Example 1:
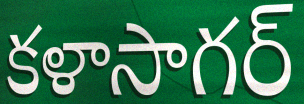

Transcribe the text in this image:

కళాసాగర్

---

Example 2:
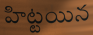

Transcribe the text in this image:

హిట్టయిన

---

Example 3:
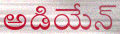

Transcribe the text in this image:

అడియేన్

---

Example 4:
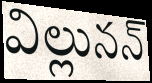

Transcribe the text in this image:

విల్లునన్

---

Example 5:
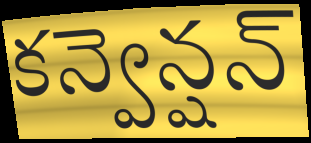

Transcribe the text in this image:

కన్వెన్షన్